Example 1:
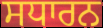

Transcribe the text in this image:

ਸਧਾਰਨ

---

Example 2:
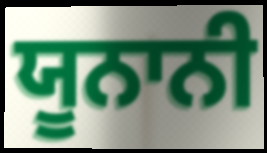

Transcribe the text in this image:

ਯੂਨਾਨੀ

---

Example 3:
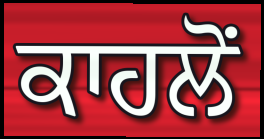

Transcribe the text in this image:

ਕਾਹਲੋਂ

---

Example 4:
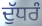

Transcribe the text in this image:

ਦੁੱਧਰੰ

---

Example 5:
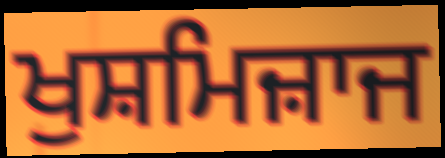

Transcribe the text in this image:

ਖੁਸ਼ਮਿਜ਼ਾਜ